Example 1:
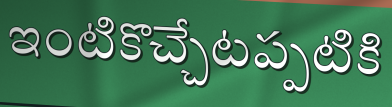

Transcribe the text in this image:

ఇంటికొచ్చేటప్పటికి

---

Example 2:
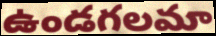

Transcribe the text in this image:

ఉండగలమా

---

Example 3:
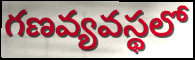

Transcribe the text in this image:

గణవ్యవస్థలో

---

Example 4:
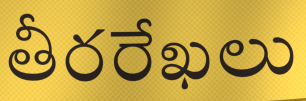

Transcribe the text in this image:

తీరరేఖలు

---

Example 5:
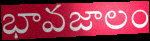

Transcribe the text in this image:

భావజాలం